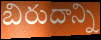
బిరుదాన్ని